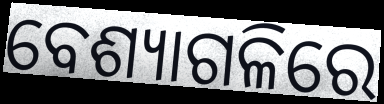
ବେଶ୍ୟାଗଳିରେ